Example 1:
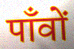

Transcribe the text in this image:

पाँवों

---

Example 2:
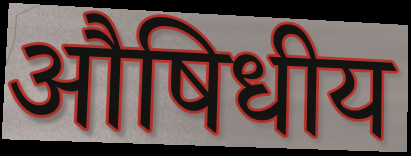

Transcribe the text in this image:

औषिधीय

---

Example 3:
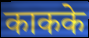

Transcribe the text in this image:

काकके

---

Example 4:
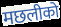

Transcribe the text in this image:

मछलीको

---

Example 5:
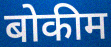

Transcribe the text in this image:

बोकीम